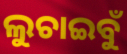
ଲୁଚାଇବୁଁ